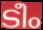
ടീം